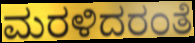
ಮರಳಿದರಂತೆ